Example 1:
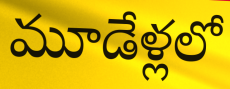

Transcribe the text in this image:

మూడేళ్లలో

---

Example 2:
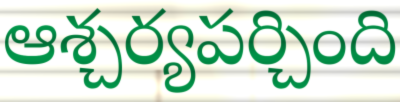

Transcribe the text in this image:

ఆశ్చర్యపర్చింది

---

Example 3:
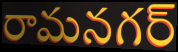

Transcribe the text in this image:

రామనగర్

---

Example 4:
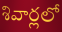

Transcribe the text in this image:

శివార్లలో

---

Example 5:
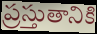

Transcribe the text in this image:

ప్రస్తుతానికి